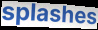
splashes